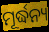
ମୂର୍ଦ୍ଧନ୍ୟ